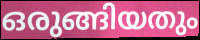
ഒരുങ്ങിയതും